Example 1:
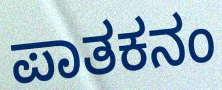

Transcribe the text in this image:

ಪಾತಕನಂ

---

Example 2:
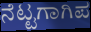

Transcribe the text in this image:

ನೆಟ್ಟಗಾಗಿಪ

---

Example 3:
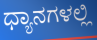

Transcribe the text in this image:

ಧ್ಯಾನಗಳಲ್ಲಿ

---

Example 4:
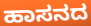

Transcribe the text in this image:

ಹಾಸನದ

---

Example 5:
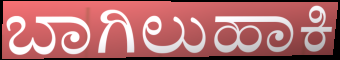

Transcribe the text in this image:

ಬಾಗಿಲುಹಾಕಿ